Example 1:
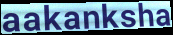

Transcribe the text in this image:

aakanksha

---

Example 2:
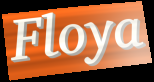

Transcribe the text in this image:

Floya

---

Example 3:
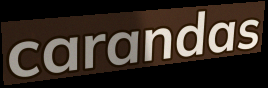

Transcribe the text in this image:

carandas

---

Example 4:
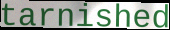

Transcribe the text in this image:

tarnished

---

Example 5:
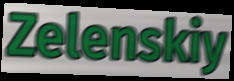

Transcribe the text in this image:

Zelenskiy